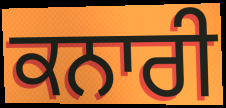
ਕਨਾਰੀ